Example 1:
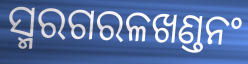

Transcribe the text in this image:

ସ୍ମରଗରଳଖଣ୍ଡନଂ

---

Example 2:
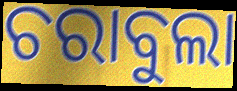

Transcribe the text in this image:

ଚରାବୁଲା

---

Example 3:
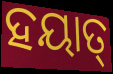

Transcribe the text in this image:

ହୟାତ୍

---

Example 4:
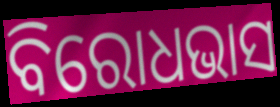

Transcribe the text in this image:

ବିରୋଧଭାସ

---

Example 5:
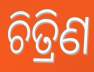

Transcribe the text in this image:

ଚିତ୍ରିଣ